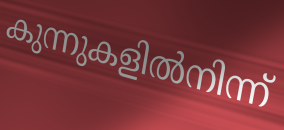
കുന്നുകളിൽനിന്ന്